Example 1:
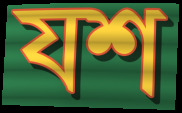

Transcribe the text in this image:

যশ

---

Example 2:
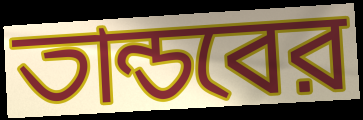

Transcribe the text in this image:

তান্ডবের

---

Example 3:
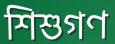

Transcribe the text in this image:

শিশুগণ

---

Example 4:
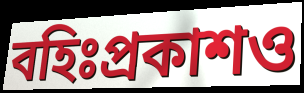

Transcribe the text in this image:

বহিঃপ্রকাশও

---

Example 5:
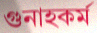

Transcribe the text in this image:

গুনাহকর্ম